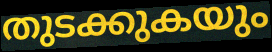
തുടക്കുകയും